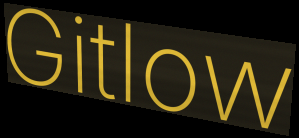
Gitlow